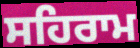
ਸਹਿਰਾਮ